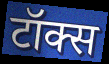
टॉक्स